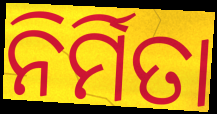
ନିର୍ମିତା